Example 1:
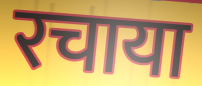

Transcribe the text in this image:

रचाया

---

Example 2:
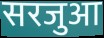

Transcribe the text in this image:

सरजुआ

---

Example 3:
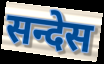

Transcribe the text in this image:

सन्देस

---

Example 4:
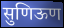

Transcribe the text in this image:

सुणिऊण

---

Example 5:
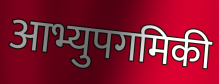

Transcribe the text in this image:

आभ्युपगमिकी